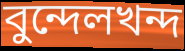
বুন্দেলখন্দ